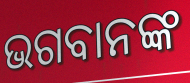
ଭଗବାନଙ୍କ